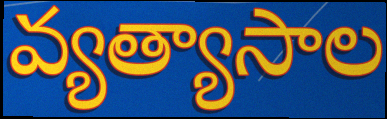
వ్యత్యాసాల